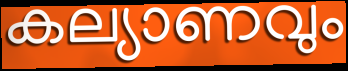
കല്യാണവും